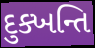
દુક્ખન્તિ